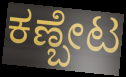
ಕಣ್ಬೇಟ